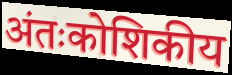
अंतःकोशिकीय